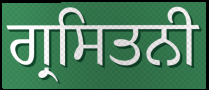
ਗ੍ਰਸਿਤਨੀ